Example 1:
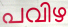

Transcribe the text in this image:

പവിഴ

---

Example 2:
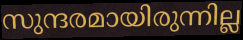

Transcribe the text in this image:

സുന്ദരമായിരുന്നില്ല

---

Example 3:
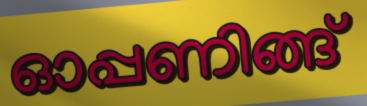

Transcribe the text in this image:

ഓപ്പണിങ്ങ്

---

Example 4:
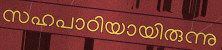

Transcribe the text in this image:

സഹപാഠിയായിരുന്നു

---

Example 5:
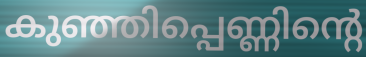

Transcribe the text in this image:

കുഞ്ഞിപ്പെണ്ണിന്റെ